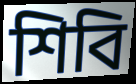
শিবি